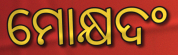
ମୋକ୍ଷଦଂ